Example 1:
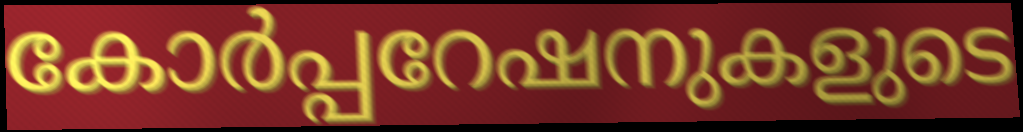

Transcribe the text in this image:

കോർപ്പറേഷനുകളുടെ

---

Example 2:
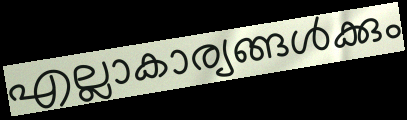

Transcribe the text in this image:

എല്ലാകാര്യങ്ങൾക്കും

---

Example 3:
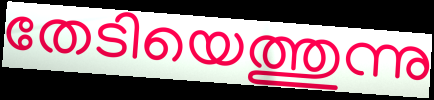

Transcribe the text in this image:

തേടിയെത്തുന്നു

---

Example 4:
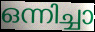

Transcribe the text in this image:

ഒന്നിച്ചാ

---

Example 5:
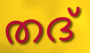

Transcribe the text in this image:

തദ്